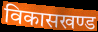
विकासखण्ड